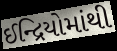
ઈન્દ્રિયોમાંથી